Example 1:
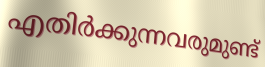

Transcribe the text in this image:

എതിർക്കുന്നവരുമുണ്ട്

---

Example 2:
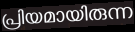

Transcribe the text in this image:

പ്രിയമായിരുന്ന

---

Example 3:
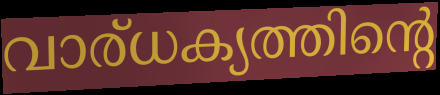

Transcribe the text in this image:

വാര്ധക്യത്തിന്റെ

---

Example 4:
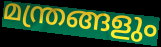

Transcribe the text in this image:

മന്ത്രങ്ങളും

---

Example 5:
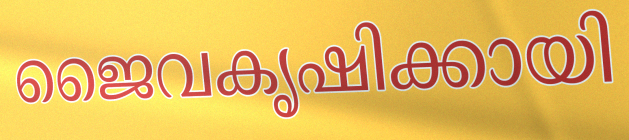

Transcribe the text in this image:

ജൈവകൃഷിക്കായി